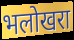
भलोखरा